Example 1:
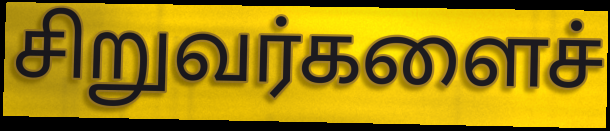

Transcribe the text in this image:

சிறுவர்களைச்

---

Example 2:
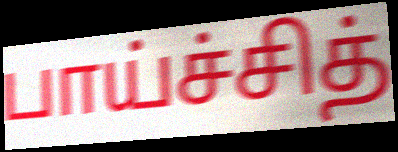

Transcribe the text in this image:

பாய்ச்சித்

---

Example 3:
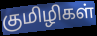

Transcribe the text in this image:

குமிழிகள்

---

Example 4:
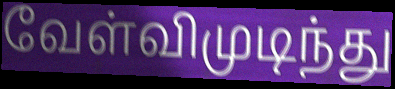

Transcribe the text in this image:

வேள்விமுடிந்து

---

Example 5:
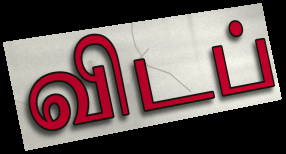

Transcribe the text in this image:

விடப்